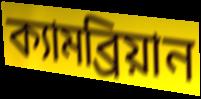
ক্যামব্রিয়ান